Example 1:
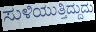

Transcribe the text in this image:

ಸುಳಿಯುತ್ತಿದ್ದುದು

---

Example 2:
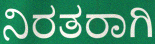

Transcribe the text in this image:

ನಿರತರಾಗಿ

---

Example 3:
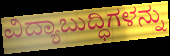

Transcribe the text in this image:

ವಿದ್ಯಾಬುದ್ಧಿಗಳನ್ನು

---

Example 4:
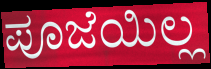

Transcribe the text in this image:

ಪೂಜೆಯಿಲ್ಲ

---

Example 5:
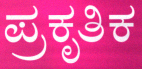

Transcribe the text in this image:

ಪ್ರಕೃತಿಕ